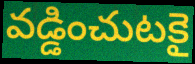
వడ్డించుటకై